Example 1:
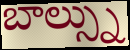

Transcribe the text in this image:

బాల్స్ను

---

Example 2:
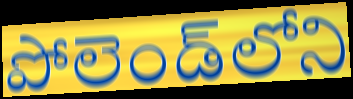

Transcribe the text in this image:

పోలెండ్‌లోని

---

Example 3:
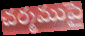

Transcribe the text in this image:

చర్మముపై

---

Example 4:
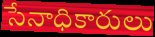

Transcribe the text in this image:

సేనాధికారులు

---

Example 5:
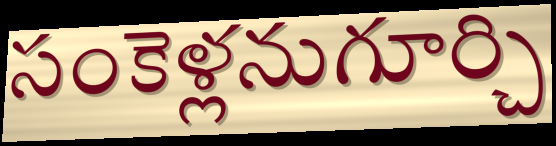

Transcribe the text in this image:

సంకెళ్లనుగూర్చి